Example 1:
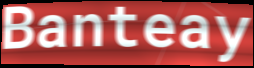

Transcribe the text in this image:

Banteay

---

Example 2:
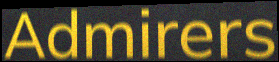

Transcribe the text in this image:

Admirers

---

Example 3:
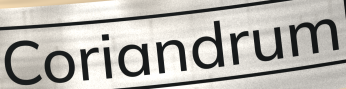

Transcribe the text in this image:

Coriandrum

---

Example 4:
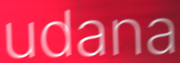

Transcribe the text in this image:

udana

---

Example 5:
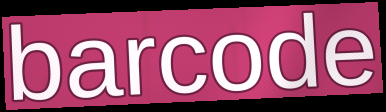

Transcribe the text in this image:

barcode